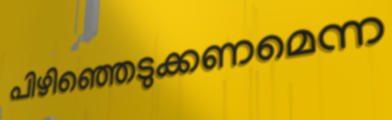
പിഴിഞ്ഞെടുക്കണമെന്ന